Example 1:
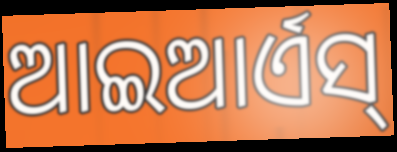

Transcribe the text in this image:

ଆଇଆର୍ଏସ୍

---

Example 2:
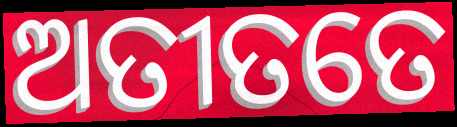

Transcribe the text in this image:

ଅତୀତତେ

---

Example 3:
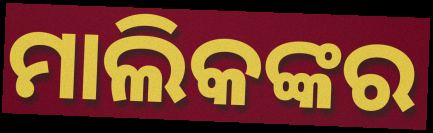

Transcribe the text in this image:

ମାଲିକଙ୍କର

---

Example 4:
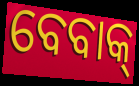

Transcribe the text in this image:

ବେବାକ୍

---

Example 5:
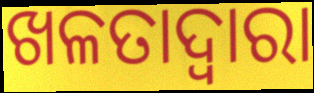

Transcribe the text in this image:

ଖଳତାଦ୍ଵାରା